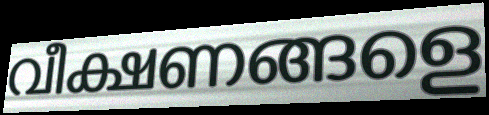
വീക്ഷണങ്ങളെ